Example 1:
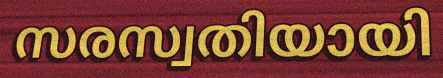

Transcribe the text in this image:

സരസ്വതിയായി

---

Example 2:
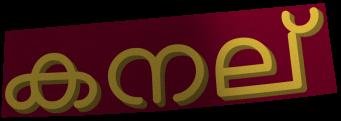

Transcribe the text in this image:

കനല്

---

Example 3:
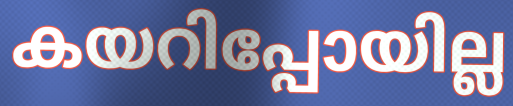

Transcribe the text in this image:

കയറിപ്പോയില്ല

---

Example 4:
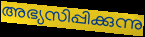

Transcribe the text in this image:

അഭ്യസിപ്പിക്കുന്നു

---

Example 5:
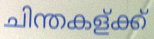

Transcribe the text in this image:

ചിന്തകള്ക്ക്